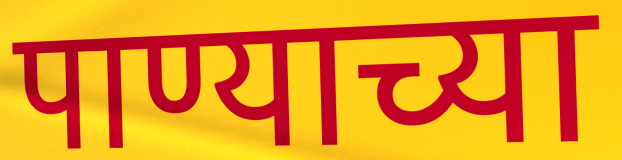
पाण्याच्या